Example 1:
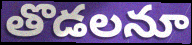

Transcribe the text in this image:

తొడలనూ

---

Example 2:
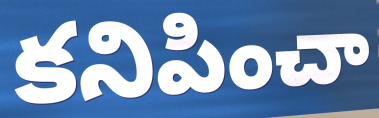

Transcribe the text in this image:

కనిపించా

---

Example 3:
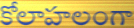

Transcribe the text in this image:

కోలాహలంగా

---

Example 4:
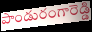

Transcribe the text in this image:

పాండురంగారెడ్డి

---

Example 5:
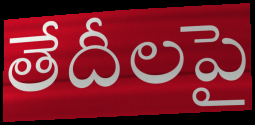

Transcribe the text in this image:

తేదీలపై